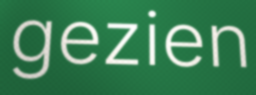
gezien